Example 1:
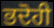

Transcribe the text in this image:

ਭਦੋਹੀ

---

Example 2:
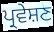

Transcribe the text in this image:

ਪ੍ਰਵੇਸ਼ਣ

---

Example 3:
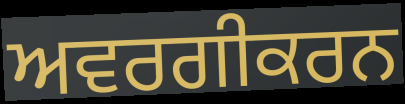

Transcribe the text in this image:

ਅਵਰਗੀਕਰਨ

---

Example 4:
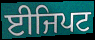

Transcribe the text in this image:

ਈਜਿਪਟ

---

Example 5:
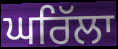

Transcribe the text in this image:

ਘਰਿੱਲਾ